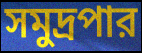
সমুদ্রপার